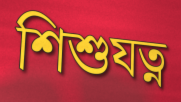
শিশুযত্ন